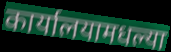
कार्यालयामधल्या